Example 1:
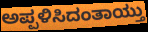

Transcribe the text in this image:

ಅಪ್ಪಳಿಸಿದಂತಾಯ್ತು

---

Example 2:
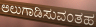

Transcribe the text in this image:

ಅಲುಗಾಡಿಸುವಂತಹ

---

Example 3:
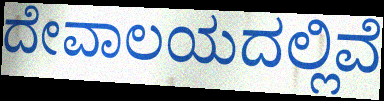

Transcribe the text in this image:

ದೇವಾಲಯದಲ್ಲಿವೆ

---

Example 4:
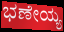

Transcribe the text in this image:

ಭಣೇಯ್ಯ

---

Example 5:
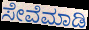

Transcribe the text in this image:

ಸೇವೆಮಾಡಿ